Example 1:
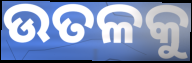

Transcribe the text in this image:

ଉତଳକୁ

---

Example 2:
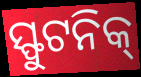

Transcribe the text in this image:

ସ୍ଫୁଟନିକ୍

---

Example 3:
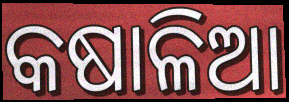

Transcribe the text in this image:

କଷାଳିଆ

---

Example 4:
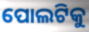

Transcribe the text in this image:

ପୋଲଟିକୁ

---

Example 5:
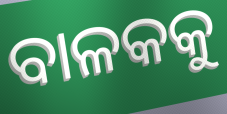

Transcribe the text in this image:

ବାଳକକୁ